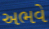
અભવે